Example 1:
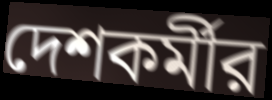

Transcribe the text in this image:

দেশকর্মীর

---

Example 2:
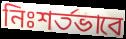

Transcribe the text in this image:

নিঃশর্তভাবে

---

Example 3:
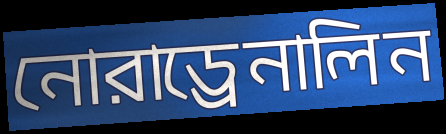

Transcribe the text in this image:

নোরাড্রেনালিন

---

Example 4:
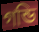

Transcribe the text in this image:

গন্ডি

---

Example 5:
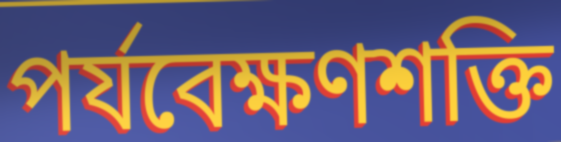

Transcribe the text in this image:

পর্যবেক্ষণশক্তি